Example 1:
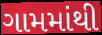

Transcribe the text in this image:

ગામમાંથી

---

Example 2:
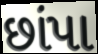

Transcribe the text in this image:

છાંપા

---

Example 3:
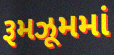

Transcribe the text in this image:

રૂમઝૂમમાં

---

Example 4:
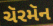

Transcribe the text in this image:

ચૅરમૅન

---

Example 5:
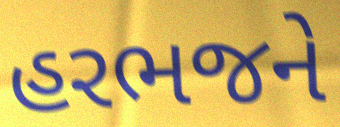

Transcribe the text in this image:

હરભજને